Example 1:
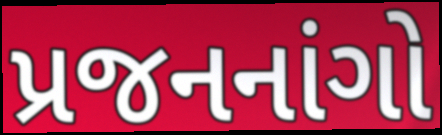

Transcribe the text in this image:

પ્રજનનાંગો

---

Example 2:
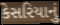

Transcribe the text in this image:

કેસરિયાનું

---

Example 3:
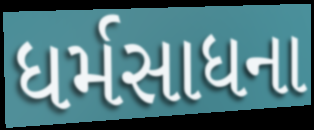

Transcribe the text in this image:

ધર્મસાધના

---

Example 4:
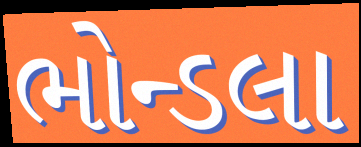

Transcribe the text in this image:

ભોન્ડલા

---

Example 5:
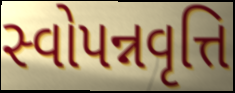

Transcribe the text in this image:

સ્વોપન્નવૃત્તિ